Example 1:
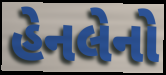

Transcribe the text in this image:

હેનલેનો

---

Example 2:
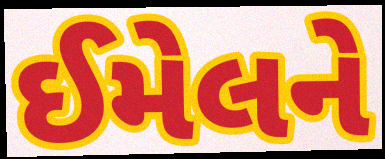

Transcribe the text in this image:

ઈમેલને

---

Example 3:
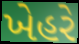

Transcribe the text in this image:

ખેહરે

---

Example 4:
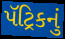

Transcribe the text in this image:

પૅટ્રિકનું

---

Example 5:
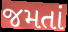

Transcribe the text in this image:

જમતાં